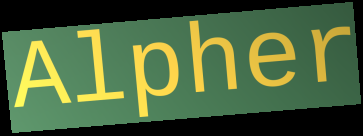
Alpher